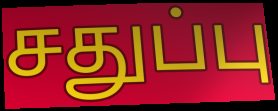
சதுப்பு